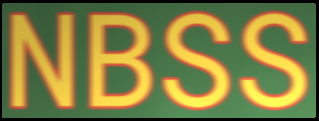
NBSS